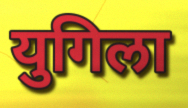
युगिला